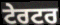
ਟੇਰਟਰ